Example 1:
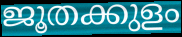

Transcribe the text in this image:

ജൂതക്കുളം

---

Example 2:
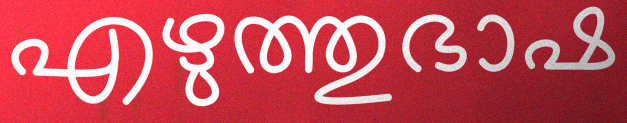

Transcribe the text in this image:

എഴുത്തുഭാഷ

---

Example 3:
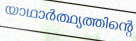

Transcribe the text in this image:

യാഥാർത്ഥ്യത്തിന്റെ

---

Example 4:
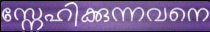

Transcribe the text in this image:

സ്നേഹിക്കുന്നവനെ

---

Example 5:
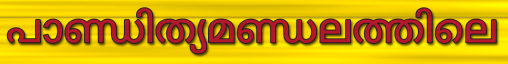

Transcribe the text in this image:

പാണ്ഡിത്യമണ്ഡലത്തിലെ